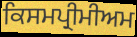
ਕਿਸਮਪ੍ਰੀਮੀਅਮ